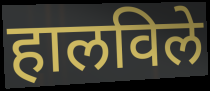
हालविले